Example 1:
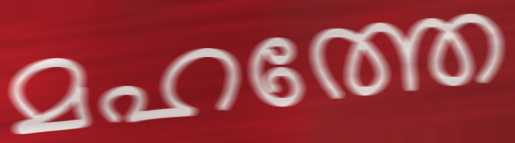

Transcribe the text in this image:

മഹത്തേ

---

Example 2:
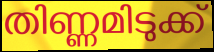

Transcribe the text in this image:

തിണ്ണമിടുക്ക്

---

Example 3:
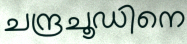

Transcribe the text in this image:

ചന്ദ്രചൂഡിനെ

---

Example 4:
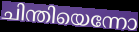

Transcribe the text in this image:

ചിന്തിയെന്നോ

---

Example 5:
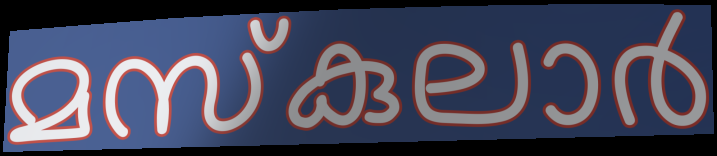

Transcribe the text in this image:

മസ്കുലാർ